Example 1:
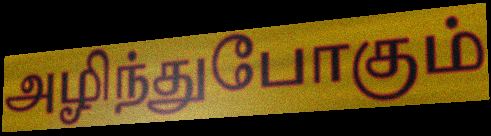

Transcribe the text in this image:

அழிந்துபோகும்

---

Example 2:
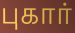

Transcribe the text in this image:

புகார்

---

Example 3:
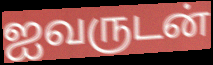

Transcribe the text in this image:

ஐவருடன்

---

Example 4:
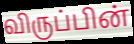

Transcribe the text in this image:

விருப்பின்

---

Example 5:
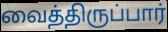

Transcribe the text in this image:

வைத்திருப்பார்